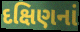
દક્ષિણનાં